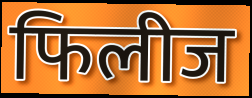
फिलीज